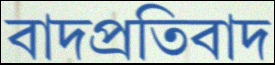
বাদপ্রতিবাদ